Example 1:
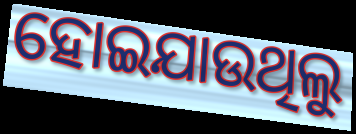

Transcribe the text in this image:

ହୋଇଯାଉଥିଲୁ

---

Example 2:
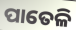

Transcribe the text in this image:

ପାତେଳି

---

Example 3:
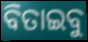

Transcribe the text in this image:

ବିତାଇବୁ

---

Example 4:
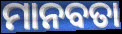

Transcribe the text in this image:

ମାନବତା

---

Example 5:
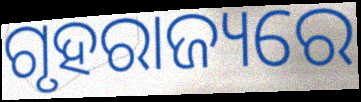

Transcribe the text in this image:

ଗୃହରାଜ୍ୟରେ